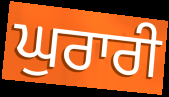
ਘੁਰਾਰੀ